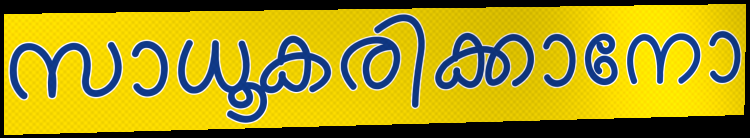
സാധൂകരിക്കാനോ